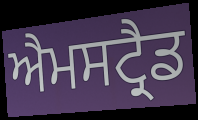
ਐਮਸਟ੍ਰੈਡ